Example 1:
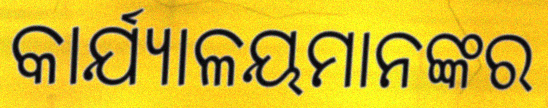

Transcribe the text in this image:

କାର୍ଯ୍ୟାଳୟମାନଙ୍କର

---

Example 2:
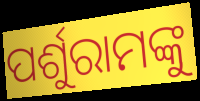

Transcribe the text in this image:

ପର୍ଶୁରାମଙ୍କୁ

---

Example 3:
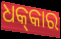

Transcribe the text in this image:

ଧକ୍‍କାର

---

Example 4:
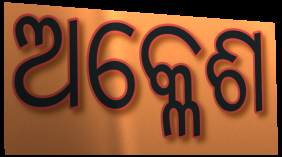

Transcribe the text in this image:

ଅକ୍ଳେଶ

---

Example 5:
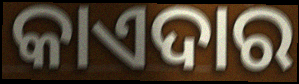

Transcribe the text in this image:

କାଏଦାର